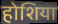
होशिया